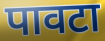
पावटा